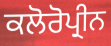
ਕਲੋਰੋਪ੍ਰੀਨ